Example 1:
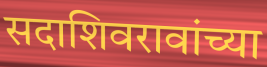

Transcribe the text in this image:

सदाशिवरावांच्या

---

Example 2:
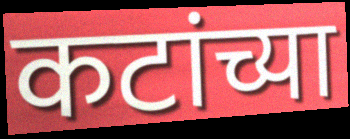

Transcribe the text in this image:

कटांच्या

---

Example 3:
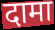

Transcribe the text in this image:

दामा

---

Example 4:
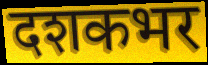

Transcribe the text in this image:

दशकभर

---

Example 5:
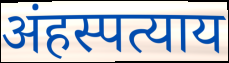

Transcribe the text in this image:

अंहस्पत्याय